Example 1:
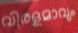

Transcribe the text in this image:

വിരളമാവും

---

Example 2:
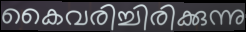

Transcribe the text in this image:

കൈവരിച്ചിരിക്കുന്നു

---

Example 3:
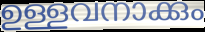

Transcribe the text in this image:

ഉള്ളവനാക്കും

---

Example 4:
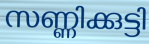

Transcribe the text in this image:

സണ്ണിക്കുട്ടി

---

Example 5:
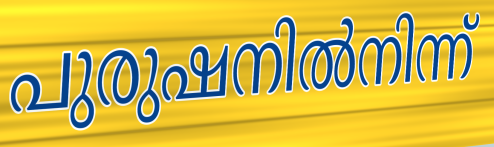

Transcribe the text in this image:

പുരുഷനിൽനിന്ന്